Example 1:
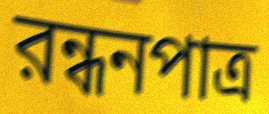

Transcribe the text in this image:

রন্ধনপাত্র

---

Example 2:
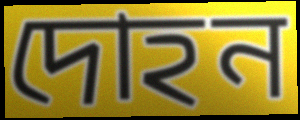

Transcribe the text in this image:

দোহন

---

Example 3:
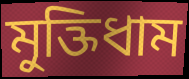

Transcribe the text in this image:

মুক্তিধাম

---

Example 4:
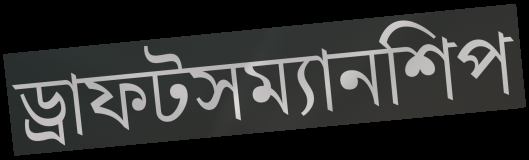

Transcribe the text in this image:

ড্রাফটসম্যানশিপ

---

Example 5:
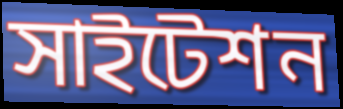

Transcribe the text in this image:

সাইটেশন